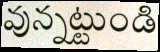
వున్నట్టుండి